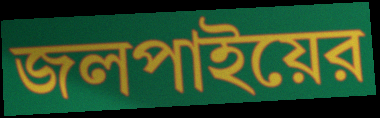
জলপাইয়ের